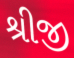
શ્રીજી